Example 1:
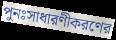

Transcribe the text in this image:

পুনঃসাধারণীকরণের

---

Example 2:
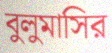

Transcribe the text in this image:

বুলুমাসির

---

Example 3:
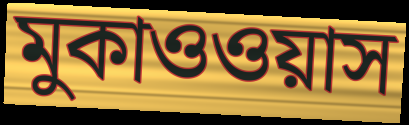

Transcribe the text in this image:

মুকাওওয়াস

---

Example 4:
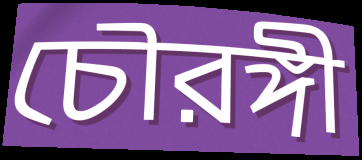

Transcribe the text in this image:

চৌরঙ্গী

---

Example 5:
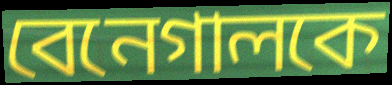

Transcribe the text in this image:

বেনেগালকে